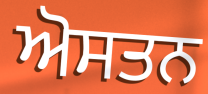
ਅੋਸਤਨ